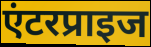
एंटरप्राइज